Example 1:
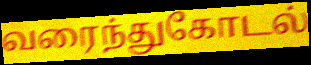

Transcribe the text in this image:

வரைந்துகோடல்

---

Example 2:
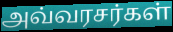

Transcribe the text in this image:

அவ்வரசர்கள்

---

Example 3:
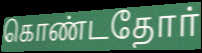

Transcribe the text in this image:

கொண்டதோர்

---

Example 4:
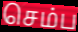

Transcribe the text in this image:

செம்ப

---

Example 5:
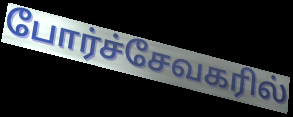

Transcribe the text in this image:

போர்ச்சேவகரில்